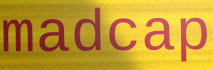
madcap